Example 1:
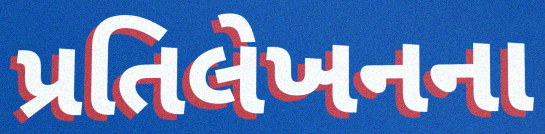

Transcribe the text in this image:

પ્રતિલેખનના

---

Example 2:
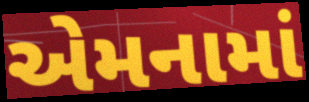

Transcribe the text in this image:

એમનામાં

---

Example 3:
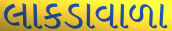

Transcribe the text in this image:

લાકડાવાળા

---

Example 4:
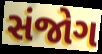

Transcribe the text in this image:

સંજોગ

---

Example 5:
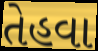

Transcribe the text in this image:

તેહવા